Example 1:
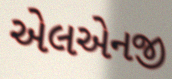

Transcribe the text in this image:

એલએનજી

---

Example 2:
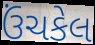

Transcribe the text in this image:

ઉંચકેલ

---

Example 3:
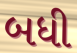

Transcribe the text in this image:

બધી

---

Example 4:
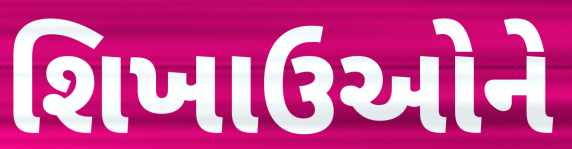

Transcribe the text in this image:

શિખાઉઓને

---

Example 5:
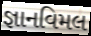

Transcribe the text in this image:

જ્ઞાનવિમલ